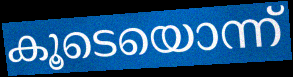
കൂടെയൊന്ന്